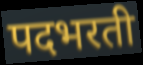
पदभरती